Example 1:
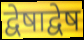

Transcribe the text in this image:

द्वेषाद्वेष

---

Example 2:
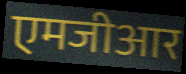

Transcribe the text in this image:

एमजीआर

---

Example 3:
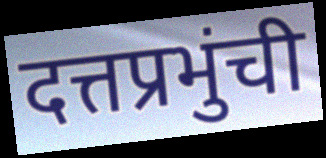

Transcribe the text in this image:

दत्तप्रभुंची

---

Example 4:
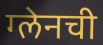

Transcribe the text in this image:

ग्लेनची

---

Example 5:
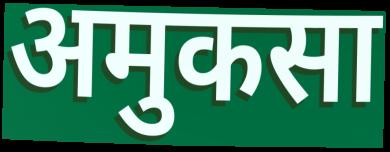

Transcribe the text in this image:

अमुकसा